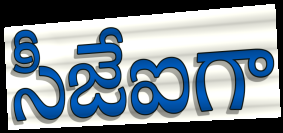
సీజేఐగా